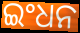
ଇଂଧନ